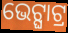
ଭେଟ୍ଘାଟ୍ର